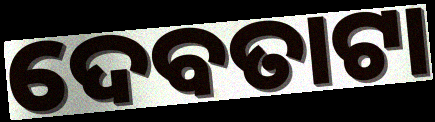
ଦେବତାଟା